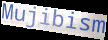
Mujibism